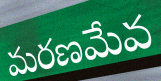
మరణమేవ